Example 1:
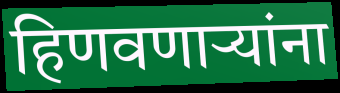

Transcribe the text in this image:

हिणवणाऱ्यांना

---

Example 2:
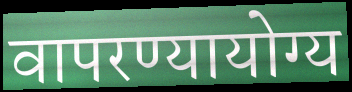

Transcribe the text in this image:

वापरण्यायोग्य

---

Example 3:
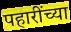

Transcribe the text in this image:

पहारींच्या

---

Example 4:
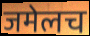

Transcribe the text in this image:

जमेलच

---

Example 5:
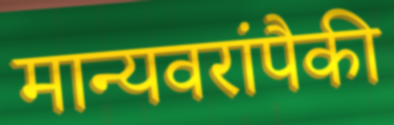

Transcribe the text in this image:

मान्यवरांपैकी